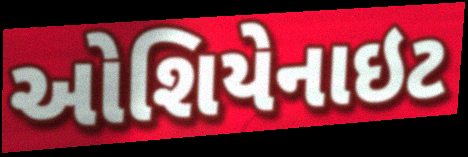
ઓશિયેનાઇટ